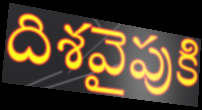
దిశవైపుకి